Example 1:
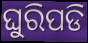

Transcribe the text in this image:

ଘୁରିପଡି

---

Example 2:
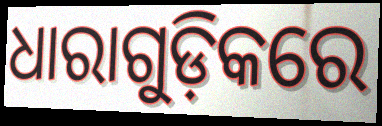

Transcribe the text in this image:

ଧାରାଗୁଡ଼ିକରେ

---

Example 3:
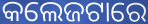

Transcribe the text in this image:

କଲେଜଟାରେ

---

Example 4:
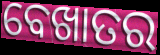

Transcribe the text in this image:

ବେଖାତର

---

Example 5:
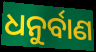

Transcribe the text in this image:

ଧନୁର୍ବାଣ